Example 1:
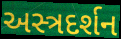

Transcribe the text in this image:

અસ્ત્રદર્શન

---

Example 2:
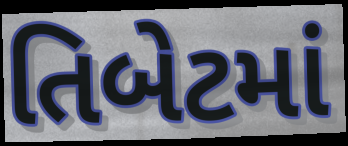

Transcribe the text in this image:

તિબેટમાં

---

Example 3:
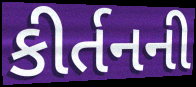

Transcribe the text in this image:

કીર્તનની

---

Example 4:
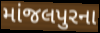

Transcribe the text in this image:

માંજલપુરના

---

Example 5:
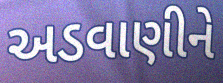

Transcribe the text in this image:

અડવાણીને